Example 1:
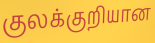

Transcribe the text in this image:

குலக்குறியான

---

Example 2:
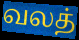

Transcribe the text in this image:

வலத்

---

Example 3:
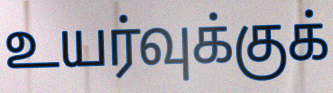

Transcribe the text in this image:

உயர்வுக்குக்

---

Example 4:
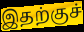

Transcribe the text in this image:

இதற்குச்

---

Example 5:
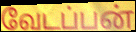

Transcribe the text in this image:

வேடப்பன்